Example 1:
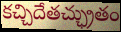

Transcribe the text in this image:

కచ్చిదేతచ్ఛ్రుతం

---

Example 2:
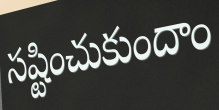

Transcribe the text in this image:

సష్టించుకుందాం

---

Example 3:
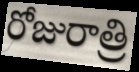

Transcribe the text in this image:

రోజురాత్రి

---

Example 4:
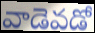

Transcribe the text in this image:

వాడెవడో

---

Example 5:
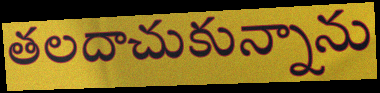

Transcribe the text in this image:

తలదాచుకున్నాను